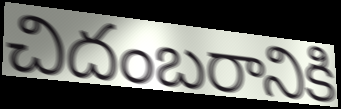
చిదంబరానికి